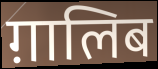
ग़ालिब